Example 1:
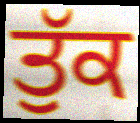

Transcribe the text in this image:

ਤੁੱਕ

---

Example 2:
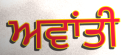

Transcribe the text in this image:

ਅਵਾਂਤੀ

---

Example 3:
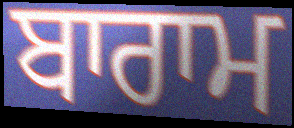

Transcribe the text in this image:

ਬਾਰਾਮ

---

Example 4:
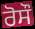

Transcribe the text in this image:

ਰੋਸੌ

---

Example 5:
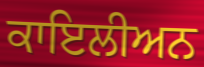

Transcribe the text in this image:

ਕਾਇਲੀਅਨ